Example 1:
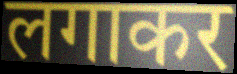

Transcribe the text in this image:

लगाकर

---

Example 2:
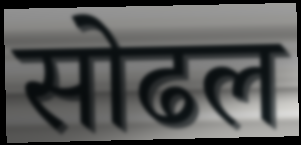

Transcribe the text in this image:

सोढल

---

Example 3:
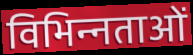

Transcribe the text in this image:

विभिन्नताओं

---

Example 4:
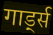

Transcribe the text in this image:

गार्ड्स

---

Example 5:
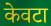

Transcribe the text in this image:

केवटा